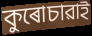
কুৰোচাৱাই